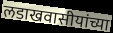
लडाखवासीयांच्या